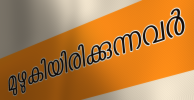
മുഴുകിയിരിക്കുന്നവർ